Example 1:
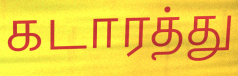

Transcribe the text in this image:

கடாரத்து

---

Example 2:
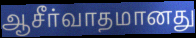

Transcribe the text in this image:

ஆசீர்வாதமானது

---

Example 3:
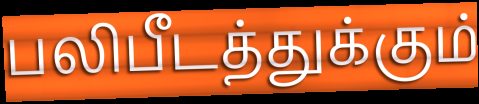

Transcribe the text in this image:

பலிபீடத்துக்கும்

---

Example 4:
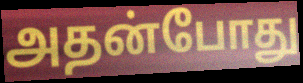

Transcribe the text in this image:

அதன்போது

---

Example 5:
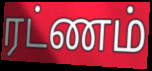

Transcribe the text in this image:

ரட்ணம்